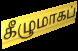
கீழுமாகப்